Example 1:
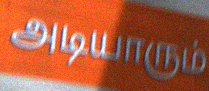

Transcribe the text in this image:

அடியாரும்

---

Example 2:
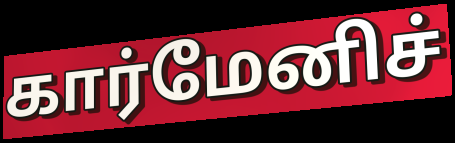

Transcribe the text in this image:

கார்மேனிச்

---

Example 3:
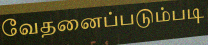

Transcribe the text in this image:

வேதனைப்படும்படி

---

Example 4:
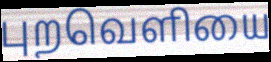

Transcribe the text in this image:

புறவெளியை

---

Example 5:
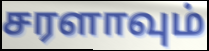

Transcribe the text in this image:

சரளாவும்